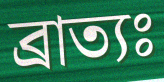
ব্রাত্যঃ